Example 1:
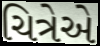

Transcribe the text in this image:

ચિત્રેએ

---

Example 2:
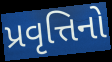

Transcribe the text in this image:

પ્રવૃત્તિનો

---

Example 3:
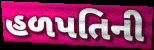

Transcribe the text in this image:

હળપતિની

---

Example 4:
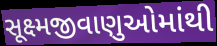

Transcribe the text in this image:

સૂક્ષ્મજીવાણુઓમાંથી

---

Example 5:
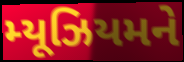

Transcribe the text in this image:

મ્યૂઝિયમને